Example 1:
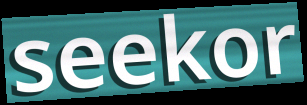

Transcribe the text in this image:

seekor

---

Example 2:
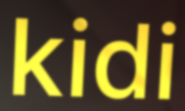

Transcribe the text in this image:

kidi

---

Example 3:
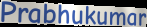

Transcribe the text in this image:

Prabhukumar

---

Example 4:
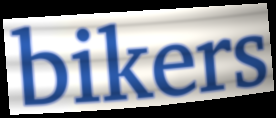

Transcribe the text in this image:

bikers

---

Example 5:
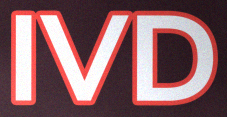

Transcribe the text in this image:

IVD